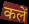
कलें